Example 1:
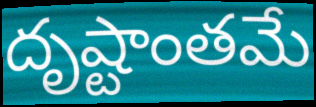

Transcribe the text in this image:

దృష్టాంతమే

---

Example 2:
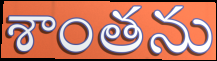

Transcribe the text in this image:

శాంతను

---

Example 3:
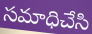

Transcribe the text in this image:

సమాధిచేసి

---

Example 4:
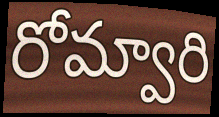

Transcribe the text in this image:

రోమ్వారి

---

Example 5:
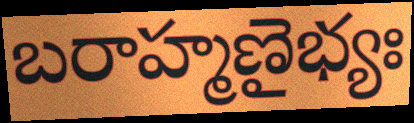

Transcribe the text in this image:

బరాహ్మణైభ్యః